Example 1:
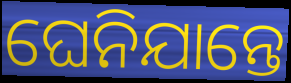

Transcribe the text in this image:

ଘେନିଯାନ୍ତେ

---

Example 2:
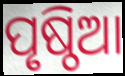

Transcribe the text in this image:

ପୃଷ୍ଠିଆ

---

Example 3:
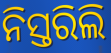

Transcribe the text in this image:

ନିସ୍ତରିଲି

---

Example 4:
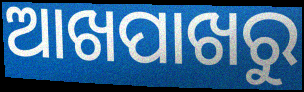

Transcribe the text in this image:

ଆଖପାଖରୁ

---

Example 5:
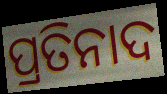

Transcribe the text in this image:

ପ୍ରତିନାଦ